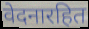
वेदनारहित